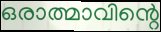
ഒരാത്മാവിന്റെ